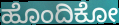
ಹೊಂದಿಕೋ